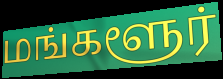
மங்களூர்